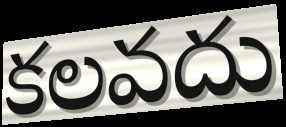
కలవదు